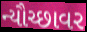
ન્યૌચ્છાવર